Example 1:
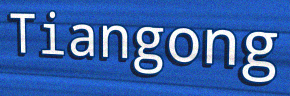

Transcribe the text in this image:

Tiangong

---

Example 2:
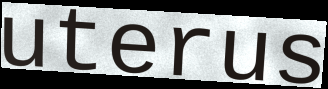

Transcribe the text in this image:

uterus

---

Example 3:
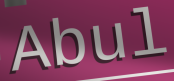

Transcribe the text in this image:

Abul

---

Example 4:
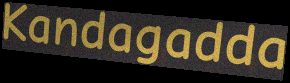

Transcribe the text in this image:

Kandagadda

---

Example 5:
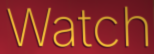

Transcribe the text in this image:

Watch